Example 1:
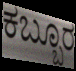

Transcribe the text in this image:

ಕಬ್ಬೂರ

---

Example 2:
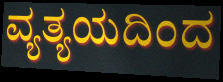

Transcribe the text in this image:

ವ್ಯತ್ಯಯದಿಂದ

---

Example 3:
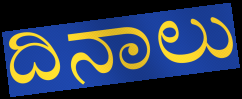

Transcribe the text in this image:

ದಿನಾಲು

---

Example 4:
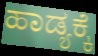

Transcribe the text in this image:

ಹಾಡ್ಯಕ್ಕೆ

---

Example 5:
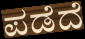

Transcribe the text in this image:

ಪಡೆದೆ